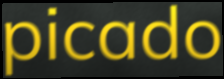
picado